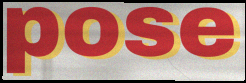
pose